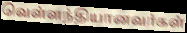
வெள்ளந்தியானவர்கள்